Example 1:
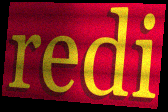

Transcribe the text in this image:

redi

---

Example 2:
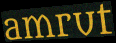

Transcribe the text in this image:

amrut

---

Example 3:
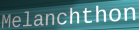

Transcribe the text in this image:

Melanchthon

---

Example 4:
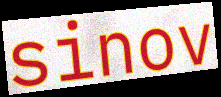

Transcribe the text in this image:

sinov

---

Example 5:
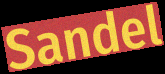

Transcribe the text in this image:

Sandel